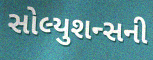
સોલ્યુશન્સની